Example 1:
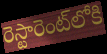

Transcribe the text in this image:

రెస్టారెంట్‌లోకి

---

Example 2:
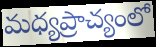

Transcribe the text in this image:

మధ్యప్రాచ్యంలో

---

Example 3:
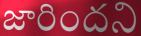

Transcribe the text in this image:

జారిందని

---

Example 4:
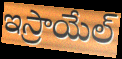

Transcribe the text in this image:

ఇస్రాయేల్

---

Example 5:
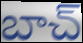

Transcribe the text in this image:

బాచ్